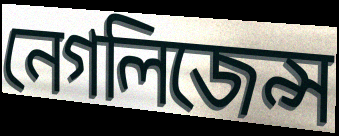
নেগলিজেন্স